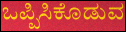
ಒಪ್ಪಿಸಿಕೊಡುವ